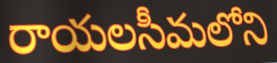
రాయలసీమలోని